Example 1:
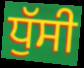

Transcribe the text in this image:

ਧੁੱਸੀ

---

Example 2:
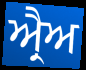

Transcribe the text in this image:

ਅ੍ਰੈਅ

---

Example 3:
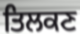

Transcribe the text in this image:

ਤਿਲਕਣ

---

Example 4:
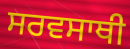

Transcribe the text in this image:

ਸਰਵਸਾਥੀ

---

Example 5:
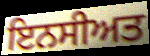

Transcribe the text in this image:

ਇਨਸੀਅਤ